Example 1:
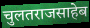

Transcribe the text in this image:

चुलतराजसाहेब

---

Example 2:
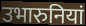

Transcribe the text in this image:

उभारुनियां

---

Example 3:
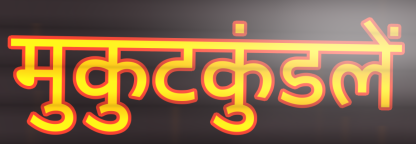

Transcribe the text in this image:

मुकुटकुंडलें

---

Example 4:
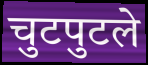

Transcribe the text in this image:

चुटपुटले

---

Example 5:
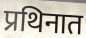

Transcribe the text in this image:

प्रथिनात